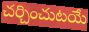
చర్చించుటయే